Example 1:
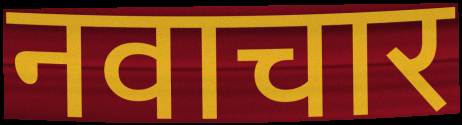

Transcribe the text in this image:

नवाचार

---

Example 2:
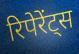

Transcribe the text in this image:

रिपेरेंट्स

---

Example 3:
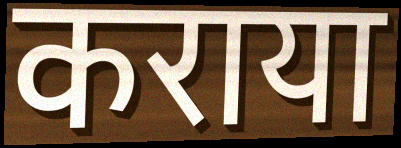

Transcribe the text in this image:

कराया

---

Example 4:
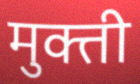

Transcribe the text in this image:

मुक्ती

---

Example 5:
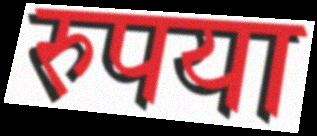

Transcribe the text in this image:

रुपया